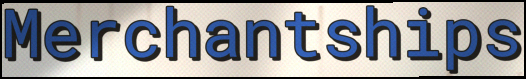
Merchantships